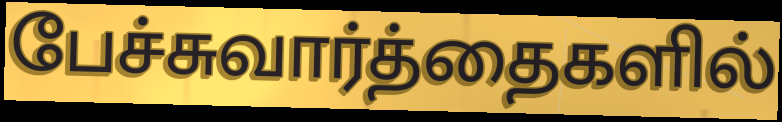
பேச்சுவார்த்தைகளில்